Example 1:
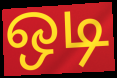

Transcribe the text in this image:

ஒடி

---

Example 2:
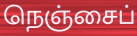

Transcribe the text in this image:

நெஞ்சைப்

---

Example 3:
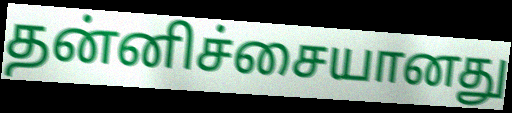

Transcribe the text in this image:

தன்னிச்சையானது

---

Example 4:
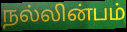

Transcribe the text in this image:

நல்லின்பம்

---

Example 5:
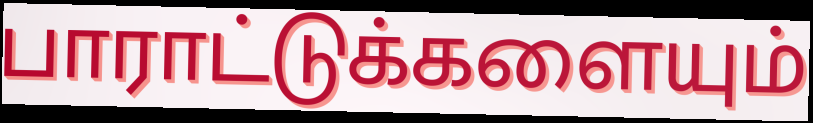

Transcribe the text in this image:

பாராட்டுக்களையும்